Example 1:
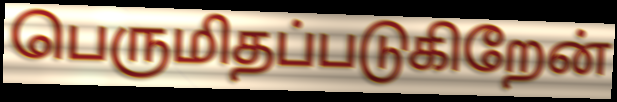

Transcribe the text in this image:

பெருமிதப்படுகிறேன்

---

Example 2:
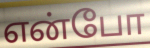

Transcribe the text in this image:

என்போ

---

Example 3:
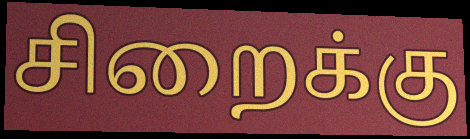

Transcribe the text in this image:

சிறைக்கு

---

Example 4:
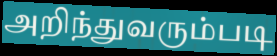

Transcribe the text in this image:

அறிந்துவரும்படி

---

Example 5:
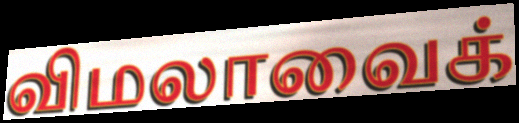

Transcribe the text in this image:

விமலாவைக்